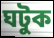
ঘটুক